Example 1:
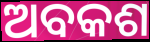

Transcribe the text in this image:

ଅବକଶ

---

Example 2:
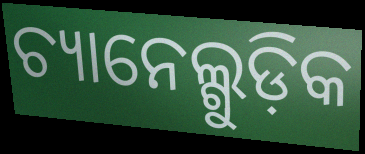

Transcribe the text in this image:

ଚ୍ୟାନେଲ୍ଗୁଡ଼ିକ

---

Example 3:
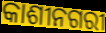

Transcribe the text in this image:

କାଶୀନଗରୀ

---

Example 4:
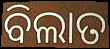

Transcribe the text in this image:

ବିଲାତ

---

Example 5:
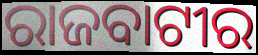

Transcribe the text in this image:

ରାଜବାଟୀର